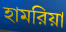
হামরিয়া